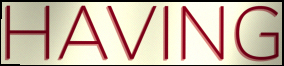
HAVING